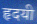
हृदयी